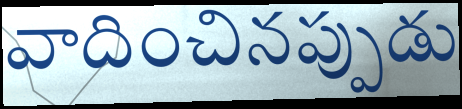
వాదించినప్పుడు